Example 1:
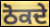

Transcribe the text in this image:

ਠੋਕਦੇ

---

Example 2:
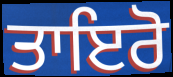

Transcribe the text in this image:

ਤਾਇਰੋ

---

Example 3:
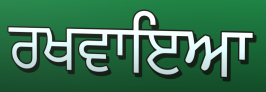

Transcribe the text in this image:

ਰਖਵਾਇਆ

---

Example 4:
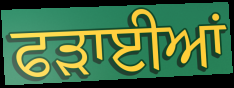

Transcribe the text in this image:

ਫੜਾਈਆਂ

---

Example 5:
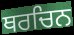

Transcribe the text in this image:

ਥਰਚਿਨ